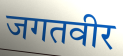
जगतवीर